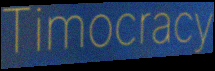
Timocracy